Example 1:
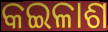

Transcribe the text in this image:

କଇଳାଶ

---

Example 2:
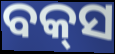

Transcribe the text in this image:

ବକ୍‍ସ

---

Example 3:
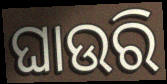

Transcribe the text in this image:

ଘାଉରି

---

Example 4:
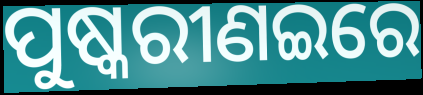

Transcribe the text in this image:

ପୁଷ୍କରୀଣଇରେ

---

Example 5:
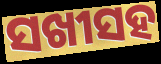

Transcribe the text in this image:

ସଖୀସହ